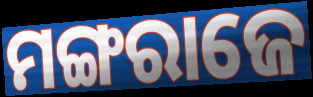
ମଙ୍ଗରାଜେ